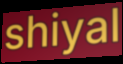
shiyal